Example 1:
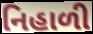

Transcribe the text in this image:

નિહાળી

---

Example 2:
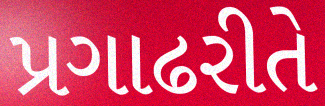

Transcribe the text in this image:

પ્રગાઢરીતે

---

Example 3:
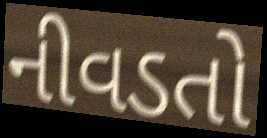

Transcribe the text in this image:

નીવડતો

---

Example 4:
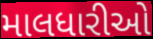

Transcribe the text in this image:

માલધારીઓ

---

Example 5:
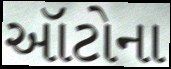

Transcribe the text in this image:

ઑટોના